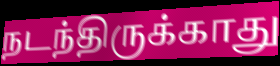
நடந்திருக்காது